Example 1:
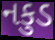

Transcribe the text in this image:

નકુડ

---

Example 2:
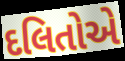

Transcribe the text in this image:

દલિતોએ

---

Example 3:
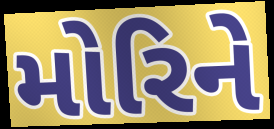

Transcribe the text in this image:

મોરિને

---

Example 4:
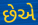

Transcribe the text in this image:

છેએ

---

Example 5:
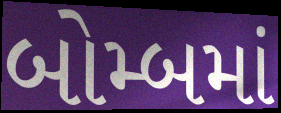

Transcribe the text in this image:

બોમ્બમાં